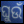
ଘୁଉଁ